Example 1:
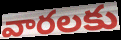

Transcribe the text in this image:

వారలకు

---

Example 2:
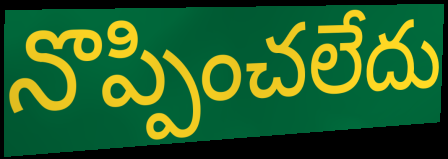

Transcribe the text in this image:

నొప్పించలేదు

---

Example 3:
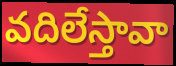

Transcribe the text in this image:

వదిలేస్తావా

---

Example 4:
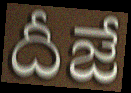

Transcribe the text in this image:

దీజే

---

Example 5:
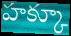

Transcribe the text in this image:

హక్కూ